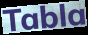
Tabla